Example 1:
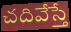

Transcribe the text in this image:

చదివేస్తే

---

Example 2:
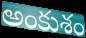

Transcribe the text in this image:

అంకుశం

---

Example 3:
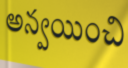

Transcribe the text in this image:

అన్వయించి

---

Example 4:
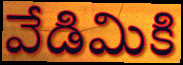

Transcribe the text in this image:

వేడిమికి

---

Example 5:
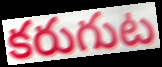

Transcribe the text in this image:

కరుగుట